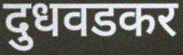
दुधवडकर